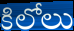
కిలోలు